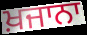
ਖ਼ਜਾਨਾ